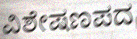
ವಿಶೇಷಣಪದ